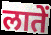
लातें